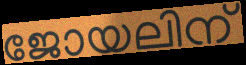
ജോയലിന്